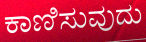
ಕಾಣಿಸುವುದು